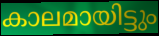
കാലമായിട്ടും